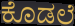
ಕೊಡಲೆ